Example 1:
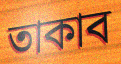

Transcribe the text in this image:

তাকাব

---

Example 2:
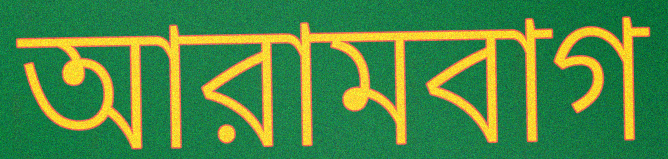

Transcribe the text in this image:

আরামবাগ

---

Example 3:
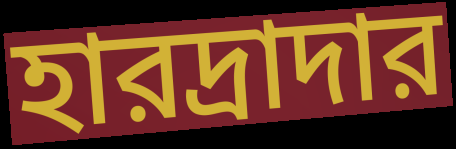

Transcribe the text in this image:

হারদ্রাদার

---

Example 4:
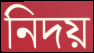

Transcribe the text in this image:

নিদয়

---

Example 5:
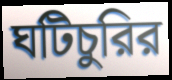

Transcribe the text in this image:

ঘটিচুরির